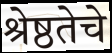
श्रेष्ठतेचे